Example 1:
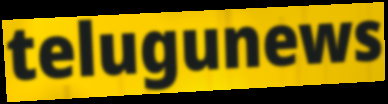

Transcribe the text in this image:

telugunews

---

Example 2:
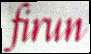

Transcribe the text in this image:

firun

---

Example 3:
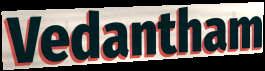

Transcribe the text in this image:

Vedantham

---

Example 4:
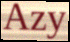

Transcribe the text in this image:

Azy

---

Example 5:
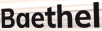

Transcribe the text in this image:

Baethel